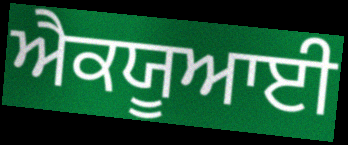
ਐਕਯੂਆਈ